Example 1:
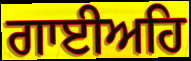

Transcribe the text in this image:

ਗਾਈਅਹਿ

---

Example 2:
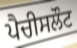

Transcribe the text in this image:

ਪੈਚੀਸਲੌਟ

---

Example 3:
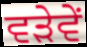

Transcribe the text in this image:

ਵੜੇਵੇਂ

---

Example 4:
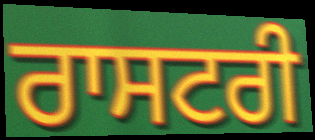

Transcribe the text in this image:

ਰਾਸਟਰੀ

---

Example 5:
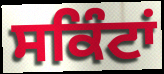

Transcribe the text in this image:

ਸਕਿੰਟਾਂ